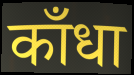
काँधा